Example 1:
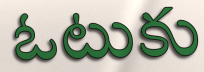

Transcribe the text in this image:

ఓటుకు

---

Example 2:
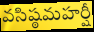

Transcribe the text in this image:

వసిష్ఠమహర్షీ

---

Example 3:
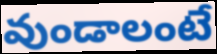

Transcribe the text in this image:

వుండాలంటే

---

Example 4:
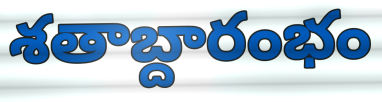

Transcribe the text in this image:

శతాబ్దారంభం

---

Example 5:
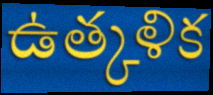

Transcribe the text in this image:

ఉత్కళిక